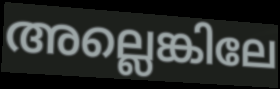
അല്ലെങ്കിലേ